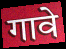
गावे